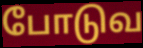
போடுவ